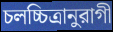
চলচ্চিত্রানুরাগী